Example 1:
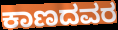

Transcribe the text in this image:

ಕಾಣದವರ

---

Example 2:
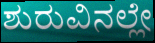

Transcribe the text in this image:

ಶುರುವಿನಲ್ಲೇ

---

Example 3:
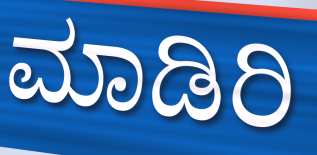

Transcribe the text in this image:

ಮಾಡಿರಿ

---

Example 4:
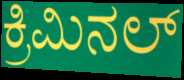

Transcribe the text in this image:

ಕ್ರಿಮಿನಲ್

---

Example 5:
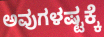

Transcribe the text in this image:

ಅವುಗಳಷ್ಟಕ್ಕೆ